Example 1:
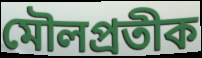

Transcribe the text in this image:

মৌলপ্রতীক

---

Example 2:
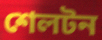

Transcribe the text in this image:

শেলটন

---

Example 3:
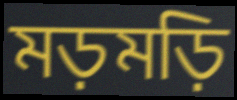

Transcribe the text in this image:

মড়মড়ি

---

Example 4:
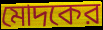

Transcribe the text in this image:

মোদকের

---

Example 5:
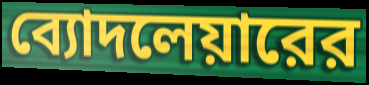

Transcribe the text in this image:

ব্যোদলেয়ারের